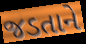
જડતાને